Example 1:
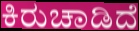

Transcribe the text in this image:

ಕಿರುಚಾಡಿದೆ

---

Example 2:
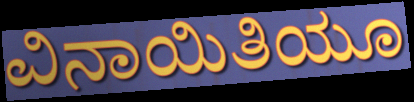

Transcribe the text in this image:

ವಿನಾಯಿತಿಯೂ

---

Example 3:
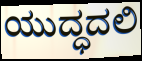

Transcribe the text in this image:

ಯುದ್ಧದಲಿ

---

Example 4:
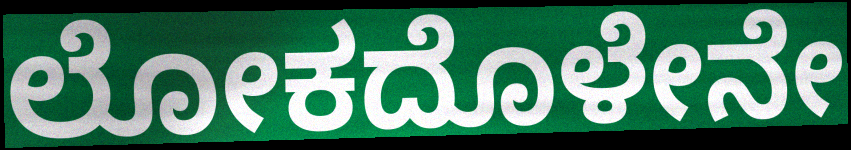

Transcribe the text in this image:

ಲೋಕದೊಳೇನೇ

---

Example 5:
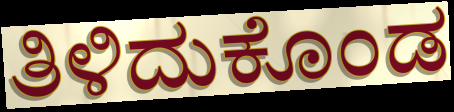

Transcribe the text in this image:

ತಿಳಿದುಕೊಂಡ